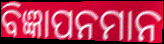
ବିଜ୍ଞାପନମାନ